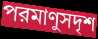
পরমাণুসদৃশ